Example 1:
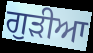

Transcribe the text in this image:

ਗੁੜੀਆ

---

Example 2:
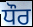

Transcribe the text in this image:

ਧੌਰ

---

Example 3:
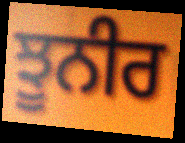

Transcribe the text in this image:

ਝੂਨੀਰ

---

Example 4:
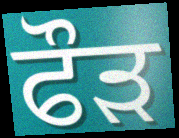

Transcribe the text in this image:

ਫੌਡ਼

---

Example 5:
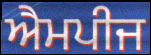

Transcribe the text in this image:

ਐਮਪੀਜ